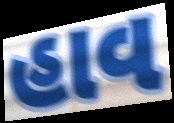
હાવ